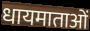
धायमाताओं